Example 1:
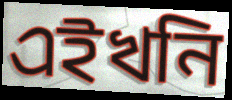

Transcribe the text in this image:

এইখনি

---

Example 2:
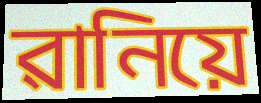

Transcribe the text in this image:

ৱানিয়ে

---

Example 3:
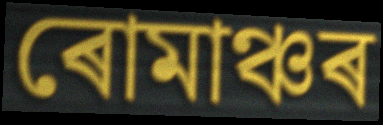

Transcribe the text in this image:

ৰোমাঞ্চৰ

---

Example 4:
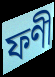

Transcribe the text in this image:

ফণী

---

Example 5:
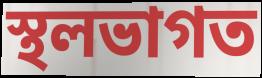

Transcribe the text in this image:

স্থলভাগত